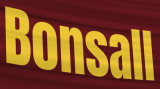
Bonsall